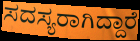
ಸದಸ್ಯರಾಗಿದ್ದಾರೆ